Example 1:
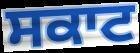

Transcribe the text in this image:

ਸਕਾਟ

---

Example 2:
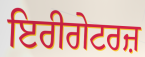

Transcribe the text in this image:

ਇਰੀਗੇਟਰਜ਼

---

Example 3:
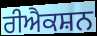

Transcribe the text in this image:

ਰੀਐਕਸ਼ਨ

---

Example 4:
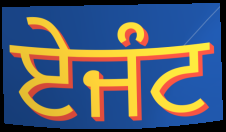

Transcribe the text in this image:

ਏਜੰਟ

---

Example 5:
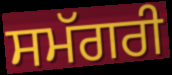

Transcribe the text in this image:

ਸਮੱਗਰੀ